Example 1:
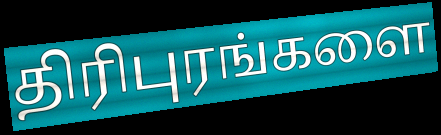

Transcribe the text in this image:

திரிபுரங்களை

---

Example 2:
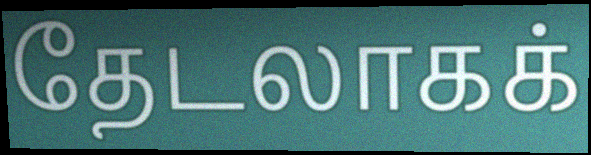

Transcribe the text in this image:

தேடலாகக்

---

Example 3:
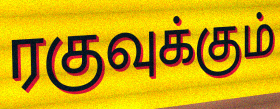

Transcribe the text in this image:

ரகுவுக்கும்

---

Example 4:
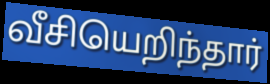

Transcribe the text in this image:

வீசியெறிந்தார்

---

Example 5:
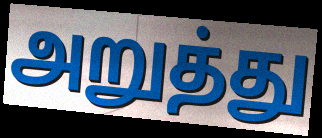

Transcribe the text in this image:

அறுத்து